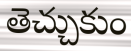
తెచ్చుకుం